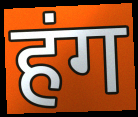
हंग